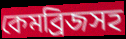
কেমব্রিজসহ